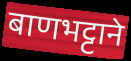
बाणभट्टाने